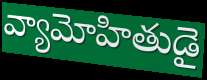
వ్యామోహితుడై